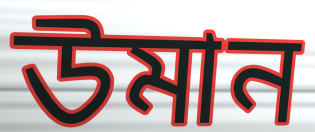
উমান